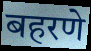
बहरणे